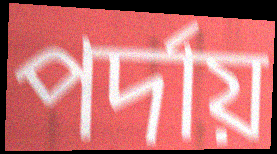
পর্দায়